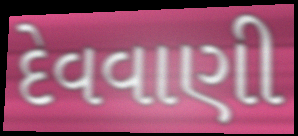
દેવવાણી